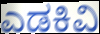
ಎಡಕಿವಿ